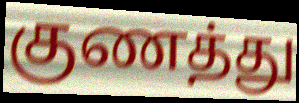
குணத்து